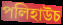
পলিহাউচ